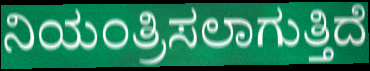
ನಿಯಂತ್ರಿಸಲಾಗುತ್ತಿದೆ